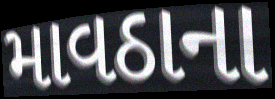
માવઠાના